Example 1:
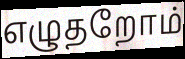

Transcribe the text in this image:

எழுதறோம்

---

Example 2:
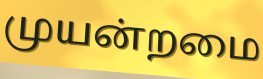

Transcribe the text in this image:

முயன்றமை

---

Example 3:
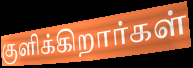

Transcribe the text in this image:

குளிக்கிறார்கள்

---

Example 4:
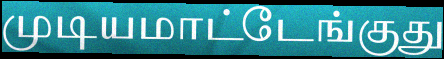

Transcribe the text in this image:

முடியமாட்டேங்குது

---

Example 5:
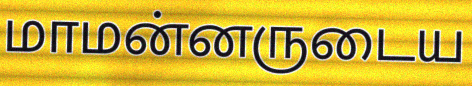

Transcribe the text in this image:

மாமன்னருடைய